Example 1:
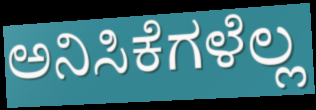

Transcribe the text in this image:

ಅನಿಸಿಕೆಗಳೆಲ್ಲ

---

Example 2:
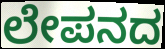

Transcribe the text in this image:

ಲೇಪನದ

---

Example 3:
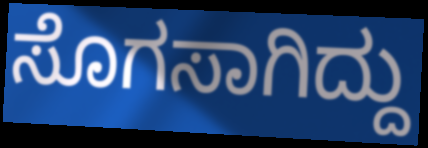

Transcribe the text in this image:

ಸೊಗಸಾಗಿದ್ದು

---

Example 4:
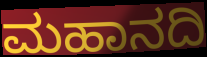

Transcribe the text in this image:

ಮಹಾನದಿ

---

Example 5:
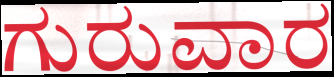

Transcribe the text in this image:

ಗುರುವಾರ